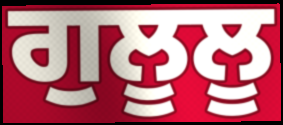
ਗੁਲੂਲੂ